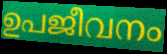
ഉപജീവനം